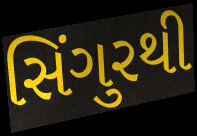
સિંગુરથી